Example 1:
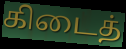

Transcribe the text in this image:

கிடைத்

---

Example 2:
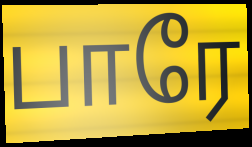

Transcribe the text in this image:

பாரே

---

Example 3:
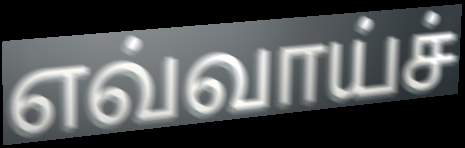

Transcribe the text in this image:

எவ்வாய்ச்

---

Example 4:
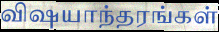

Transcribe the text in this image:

விஷயாந்தரங்கள்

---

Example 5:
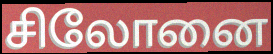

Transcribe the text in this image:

சிலோனை